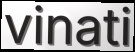
vinati